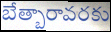
బేత్బారావరకు